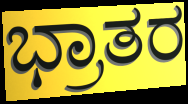
ಭ್ರಾತರ